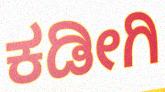
ಕಡೀಗಿ